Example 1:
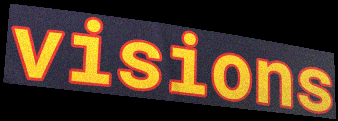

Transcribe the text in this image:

visions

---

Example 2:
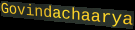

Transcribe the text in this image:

Govindachaarya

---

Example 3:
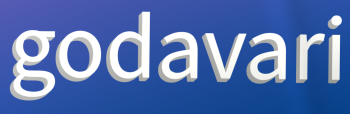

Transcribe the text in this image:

godavari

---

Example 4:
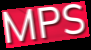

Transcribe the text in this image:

MPS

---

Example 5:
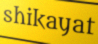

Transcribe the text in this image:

shikayat